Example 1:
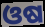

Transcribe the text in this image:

ଓଷ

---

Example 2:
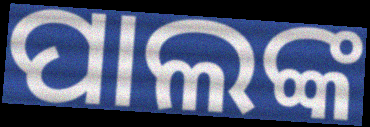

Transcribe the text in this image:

ପାଲଙ୍କ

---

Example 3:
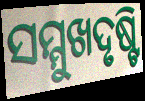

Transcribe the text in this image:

ସମ୍ମୁଖଦୃଷ୍ଟି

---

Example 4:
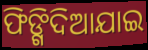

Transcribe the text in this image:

ଫିଙ୍ଗିଦିଆଯାଇ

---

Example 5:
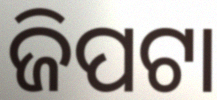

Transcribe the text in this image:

ଜିପଟା